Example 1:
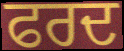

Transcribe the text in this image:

ਫਰਦ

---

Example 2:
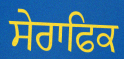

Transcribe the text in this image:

ਸੇਰਾਫਿਕ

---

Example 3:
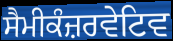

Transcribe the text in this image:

ਸੈਮੀਕੰਜ਼ਰਵੇਟਿਵ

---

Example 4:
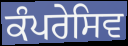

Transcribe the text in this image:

ਕੰਪਰੇਸਿਵ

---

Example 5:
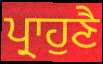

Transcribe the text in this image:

ਪ੍ਰਾਹੁਣੈ